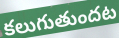
కలుగుతుందట